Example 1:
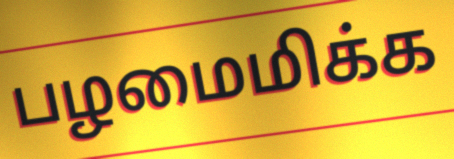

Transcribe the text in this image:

பழமைமிக்க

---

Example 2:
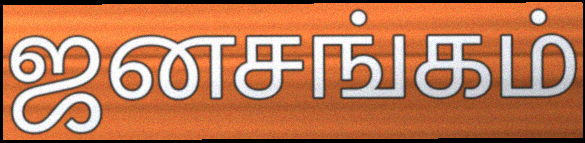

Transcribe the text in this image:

ஜனசங்கம்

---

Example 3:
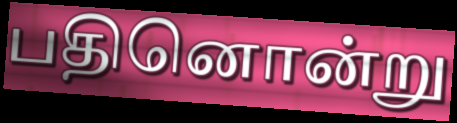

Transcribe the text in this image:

பதினொன்று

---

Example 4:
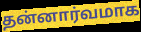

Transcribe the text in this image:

தன்னார்வமாக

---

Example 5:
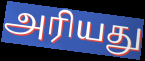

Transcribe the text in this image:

அரியது